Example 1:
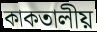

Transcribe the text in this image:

কাকতালীয়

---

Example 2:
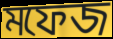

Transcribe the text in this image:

মফেজ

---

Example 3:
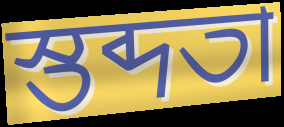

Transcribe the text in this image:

স্তব্দতা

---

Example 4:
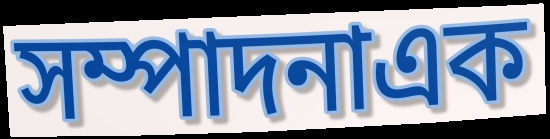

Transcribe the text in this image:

সম্পাদনাএক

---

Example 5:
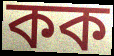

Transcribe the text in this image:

কক